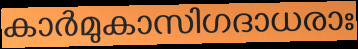
കാർമുകാസിഗദാധരാഃ